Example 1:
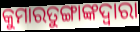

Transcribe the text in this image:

କୁମାରତୁଙ୍ଗାଙ୍କଦ୍ୱାରା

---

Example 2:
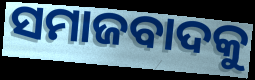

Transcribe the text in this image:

ସମାଜବାଦକୁ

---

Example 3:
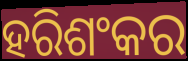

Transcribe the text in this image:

ହରିଶଂକର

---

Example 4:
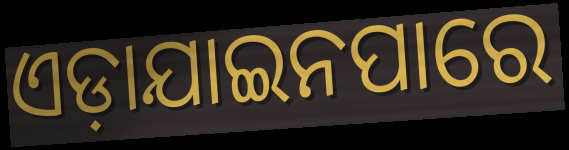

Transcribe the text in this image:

ଏଡ଼ାଯାଇନପାରେ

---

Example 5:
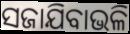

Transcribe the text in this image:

ସଜାଯିବାଭଳି